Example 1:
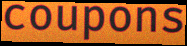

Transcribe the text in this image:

coupons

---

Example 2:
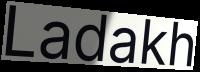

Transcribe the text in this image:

Ladakh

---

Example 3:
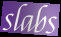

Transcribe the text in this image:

slabs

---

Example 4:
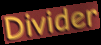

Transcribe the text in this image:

Divider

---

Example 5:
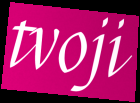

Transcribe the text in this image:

tvoji